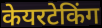
केयरटेकिंग